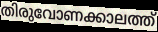
തിരുവോണക്കാലത്ത്